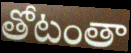
తోటంతా